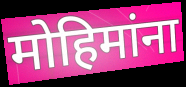
मोहिमांना